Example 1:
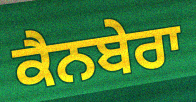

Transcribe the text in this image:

ਕੈਨਬੇਰਾ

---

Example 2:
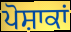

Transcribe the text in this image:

ਪੋਸ਼ਾਕਾਂ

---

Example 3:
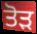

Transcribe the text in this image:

ਤੋੜ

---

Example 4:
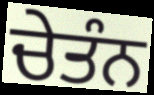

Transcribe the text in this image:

ਚੇਤੰਨ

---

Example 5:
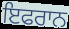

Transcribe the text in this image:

ਇਫਰਾਨ